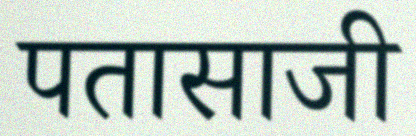
पतासाजी